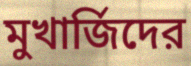
মুখার্জিদের